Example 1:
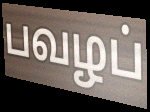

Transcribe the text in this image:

பவழப்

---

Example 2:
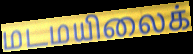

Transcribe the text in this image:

மடமயிலைக்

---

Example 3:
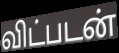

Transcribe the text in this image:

விட்படன்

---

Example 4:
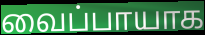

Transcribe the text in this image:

வைப்பாயாக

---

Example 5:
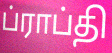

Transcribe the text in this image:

ப்ராப்தி